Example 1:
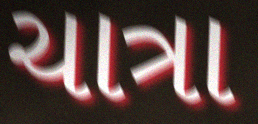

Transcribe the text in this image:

ચાત્રા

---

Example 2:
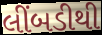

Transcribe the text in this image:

લીંબડીથી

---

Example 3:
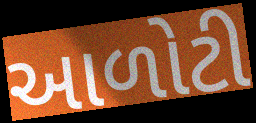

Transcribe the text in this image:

આળોટી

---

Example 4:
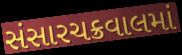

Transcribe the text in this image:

સંસારચક્રવાલમાં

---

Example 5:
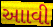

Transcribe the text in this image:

આાવી